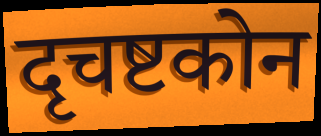
दृचष्टकोन